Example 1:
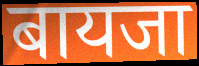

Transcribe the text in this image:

बायजा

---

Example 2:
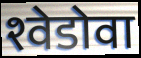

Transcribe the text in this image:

श्वेडोवा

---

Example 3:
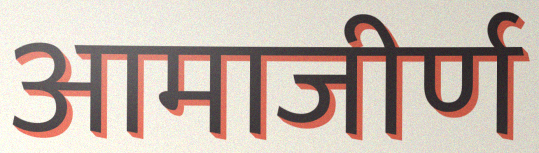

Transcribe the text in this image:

आमाजीर्ण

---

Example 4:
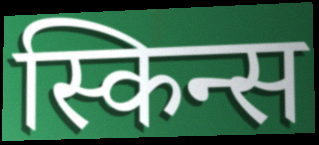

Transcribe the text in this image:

स्किन्स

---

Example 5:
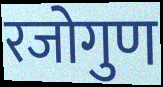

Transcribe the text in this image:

रजोगुण